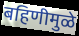
बहिणीमुळे